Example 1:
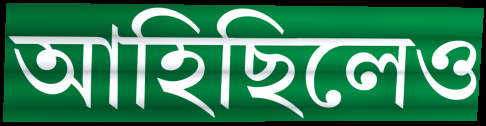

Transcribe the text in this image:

আহিছিলেও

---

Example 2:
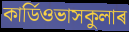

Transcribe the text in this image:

কাৰ্ডিওভাসকুলাৰ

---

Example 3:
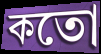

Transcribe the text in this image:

কতো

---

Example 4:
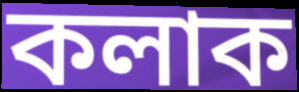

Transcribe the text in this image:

কলাক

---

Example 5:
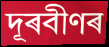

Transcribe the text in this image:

দূৰবীণৰ